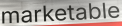
marketable